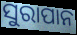
ସୁରାପାନ